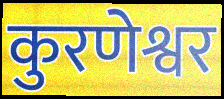
कुरणेश्वर